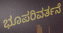
ಭೂಪರಿವರ್ತನೆ